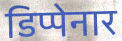
डिप्पेनार